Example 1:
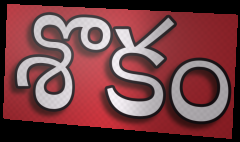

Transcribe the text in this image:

శొకం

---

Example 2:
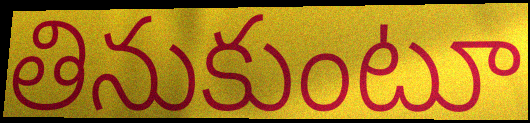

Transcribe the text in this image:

తినుకుంటూ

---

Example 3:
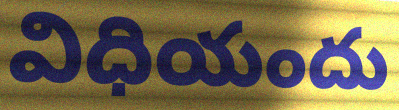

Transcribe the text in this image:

విధియందు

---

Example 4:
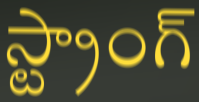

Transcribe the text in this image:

స్ట్రాంగ్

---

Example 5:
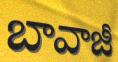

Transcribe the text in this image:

బావాజీ